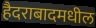
हैदराबादमधील